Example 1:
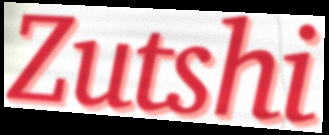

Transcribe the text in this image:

Zutshi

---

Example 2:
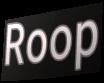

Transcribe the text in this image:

Roop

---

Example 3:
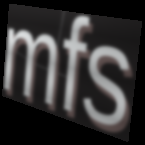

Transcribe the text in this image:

mfs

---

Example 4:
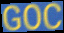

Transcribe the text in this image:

GOC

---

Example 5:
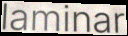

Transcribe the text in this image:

laminar